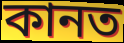
কানত